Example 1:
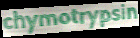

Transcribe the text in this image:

chymotrypsin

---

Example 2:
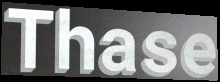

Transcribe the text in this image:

Thase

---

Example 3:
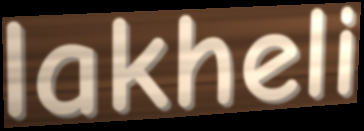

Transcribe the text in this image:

lakheli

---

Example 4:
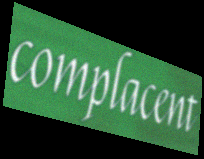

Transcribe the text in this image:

complacent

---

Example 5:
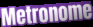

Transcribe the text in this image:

Metronome